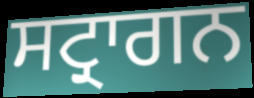
ਸਟ੍ਰਾਗਨ